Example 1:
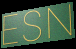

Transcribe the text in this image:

ESN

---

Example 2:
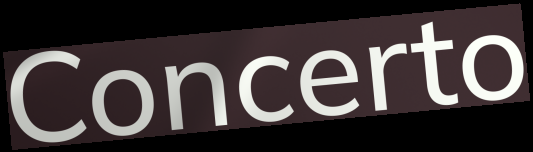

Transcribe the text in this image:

Concerto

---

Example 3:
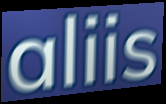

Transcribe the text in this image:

aliis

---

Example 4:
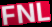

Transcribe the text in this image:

FNL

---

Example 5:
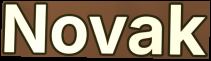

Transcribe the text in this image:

Novak